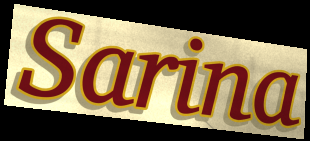
Sarina